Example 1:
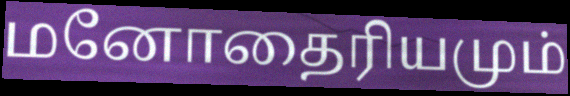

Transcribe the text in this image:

மனோதைரியமும்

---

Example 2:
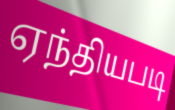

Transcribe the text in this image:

ஏந்தியபடி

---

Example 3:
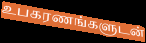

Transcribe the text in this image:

உபகரணங்களுடன்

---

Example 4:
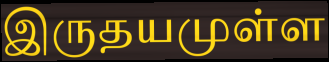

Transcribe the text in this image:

இருதயமுள்ள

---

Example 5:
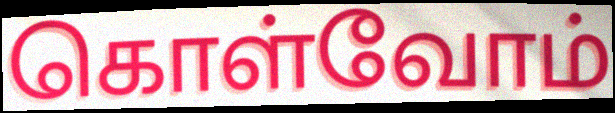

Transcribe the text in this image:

கொள்வோம்